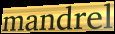
mandrel